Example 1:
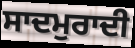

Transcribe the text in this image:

ਸਾਦਮੁਰਾਦੀ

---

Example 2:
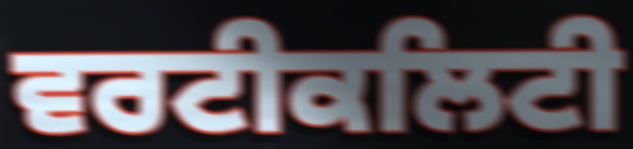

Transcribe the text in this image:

ਵਰਟੀਕਲਿਟੀ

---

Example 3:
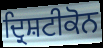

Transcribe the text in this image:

ਦ੍ਰਿਸ਼ਟੀਕੋਨ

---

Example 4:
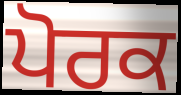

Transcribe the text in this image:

ਪੋਰਕ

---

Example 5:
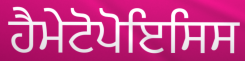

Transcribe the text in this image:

ਹੈਮੇਟੋਪੋਇਸਿਸ